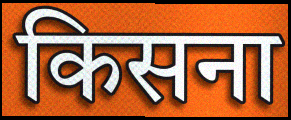
किसना